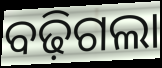
ବଢ଼ିଗଲା